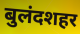
बुलंदशहर